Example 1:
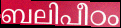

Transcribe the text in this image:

ബലിപീഠം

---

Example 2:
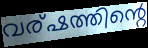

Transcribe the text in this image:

വര്ഷത്തിന്റെ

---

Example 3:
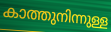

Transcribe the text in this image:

കാത്തുനിന്നുള്ള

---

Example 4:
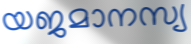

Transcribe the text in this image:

യജമാനസ്യ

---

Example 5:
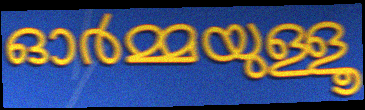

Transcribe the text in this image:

ഓർമ്മയുള്ളൂ